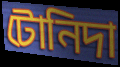
টোনিদা